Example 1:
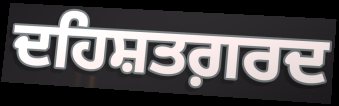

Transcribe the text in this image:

ਦਹਿਸ਼ਤਗ਼ਰਦ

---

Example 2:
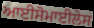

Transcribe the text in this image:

ਆਈਸੋਮਾਈਲੇਸ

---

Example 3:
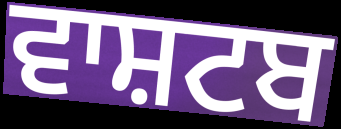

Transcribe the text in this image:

ਵਾਸ਼ਟਬ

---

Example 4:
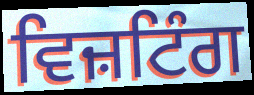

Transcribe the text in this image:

ਵਿਜ਼ਟਿੰਗ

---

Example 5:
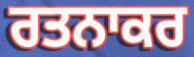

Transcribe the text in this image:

ਰਤਨਾਕਰ